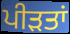
ਪੀਡ਼ਤਾਂ